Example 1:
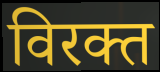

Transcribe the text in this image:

विरक्त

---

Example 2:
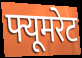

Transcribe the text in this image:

फ्यूमरेट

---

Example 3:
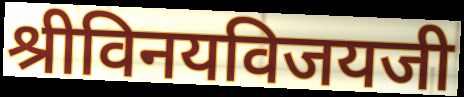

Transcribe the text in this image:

श्रीविनयविजयजी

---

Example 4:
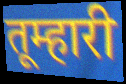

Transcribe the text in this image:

तूम्हारी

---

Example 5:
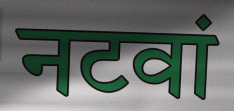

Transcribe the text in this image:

नटवां